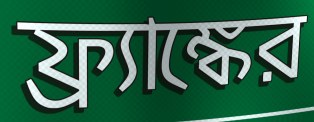
ফ্র্যাঙ্কের